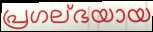
പ്രഗല്ഭയായ